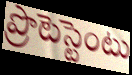
ప్రొటెస్టెంటు